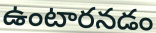
ఉంటారనడం